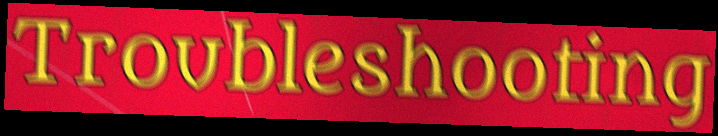
Troubleshooting